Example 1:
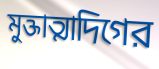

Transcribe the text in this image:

মুক্তাত্মাদিগের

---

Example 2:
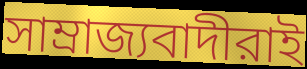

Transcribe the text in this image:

সাম্রাজ্যবাদীরাই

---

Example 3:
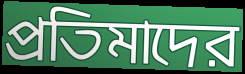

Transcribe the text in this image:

প্রতিমাদের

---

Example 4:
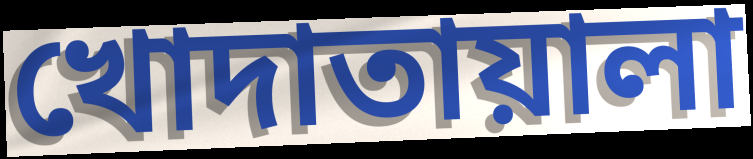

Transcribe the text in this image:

খোদাতায়ালা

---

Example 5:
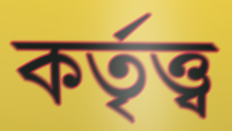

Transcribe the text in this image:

কর্তৃত্ত্ব